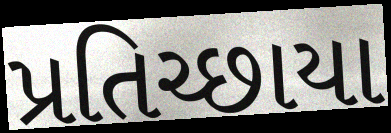
પ્રતિચ્છાયા